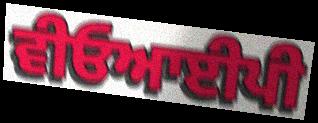
ਵੀਓਆਈਪੀ